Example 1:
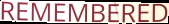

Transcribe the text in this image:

REMEMBERED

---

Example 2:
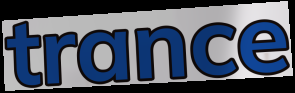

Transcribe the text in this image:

trance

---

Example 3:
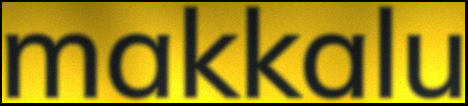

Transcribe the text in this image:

makkalu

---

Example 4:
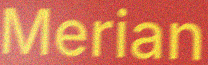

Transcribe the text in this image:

Merian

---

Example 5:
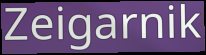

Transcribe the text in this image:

Zeigarnik